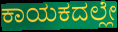
ಕಾಯಕದಲ್ಲೇ